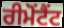
ਰੀਮੋਂਟੈਂਟ